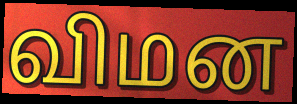
விமன